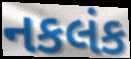
નકલંક